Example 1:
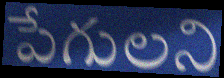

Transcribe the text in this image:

పేగులని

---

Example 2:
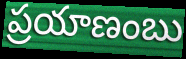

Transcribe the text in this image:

ప్రయాణంబు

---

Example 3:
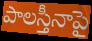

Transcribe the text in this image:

పాలస్తీనాపై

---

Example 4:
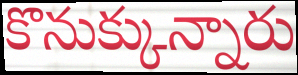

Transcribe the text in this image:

కొనుక్కున్నారు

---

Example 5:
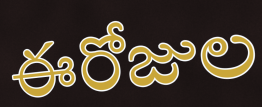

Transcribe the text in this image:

ఈరోజుల